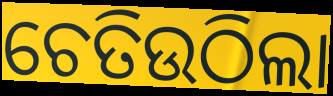
ଚେତିଉଠିଲା